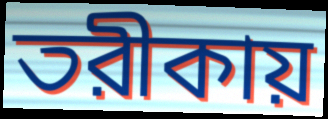
তরীকায়